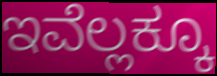
ಇವೆಲ್ಲಕ್ಕೂ